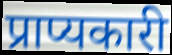
प्राप्यकारी